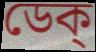
ডেক্